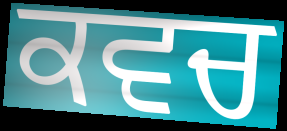
ਕਵਚ